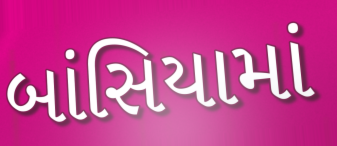
બાંસિયામાં